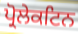
ਪ੍ਰੋਲੇਕਟਿਨ